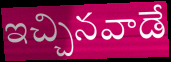
ఇచ్చినవాడే